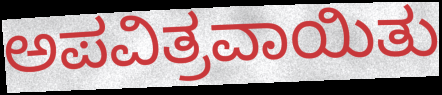
ಅಪವಿತ್ರವಾಯಿತು